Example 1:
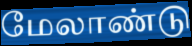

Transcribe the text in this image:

மேலாண்டு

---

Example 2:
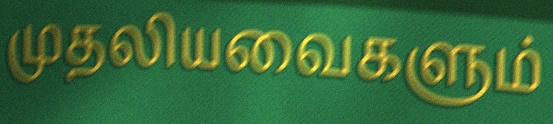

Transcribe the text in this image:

முதலியவைகளும்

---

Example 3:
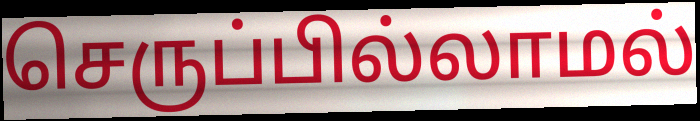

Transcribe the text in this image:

செருப்பில்லாமல்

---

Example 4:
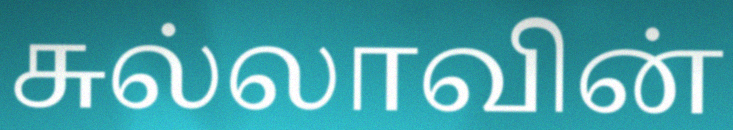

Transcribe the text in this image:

சுல்லாவின்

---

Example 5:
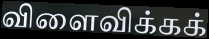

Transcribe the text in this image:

விளைவிக்கக்